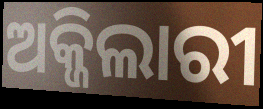
ଅକ୍ଜିଲାରୀ